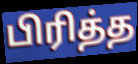
பிரித்த